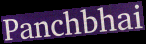
Panchbhai